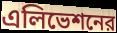
এলিভেশনের